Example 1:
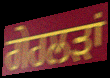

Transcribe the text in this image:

ਗੇਹਲੜਾਂ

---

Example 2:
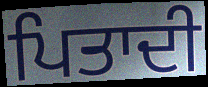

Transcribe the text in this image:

ਪਿਤਾਦੀ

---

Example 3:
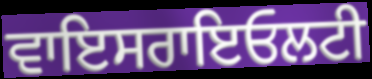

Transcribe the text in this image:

ਵਾਇਸਰਾਇਓਲਟੀ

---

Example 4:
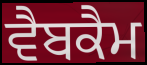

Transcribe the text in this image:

ਵੈਬਕੈਮ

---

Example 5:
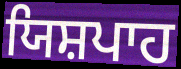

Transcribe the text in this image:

ਯਿਸ਼ਪਾਹ